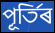
পূৰ্তিৰ